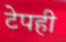
टेपही